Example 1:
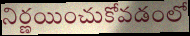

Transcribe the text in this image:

నిర్ణయించుకోవడంలో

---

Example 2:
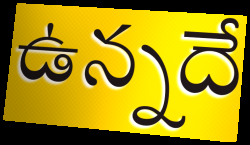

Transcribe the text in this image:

ఉన్నదే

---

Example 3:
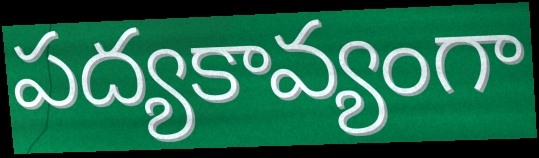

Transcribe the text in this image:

పద్యకావ్యంగా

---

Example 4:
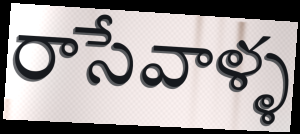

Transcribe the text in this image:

రాసేవాళ్ళ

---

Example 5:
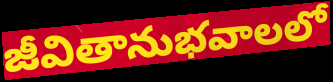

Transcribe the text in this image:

జీవితానుభవాలలో